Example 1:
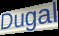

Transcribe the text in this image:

Dugal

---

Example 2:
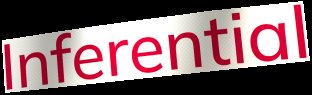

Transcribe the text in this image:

Inferential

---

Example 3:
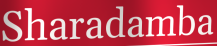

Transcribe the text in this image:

Sharadamba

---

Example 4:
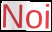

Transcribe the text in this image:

Noi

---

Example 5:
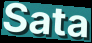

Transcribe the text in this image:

Sata